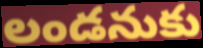
లండనుకు